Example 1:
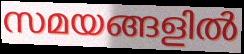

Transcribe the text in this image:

സമയങ്ങളിൽ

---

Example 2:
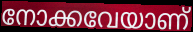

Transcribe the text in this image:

നോക്കവേയാണ്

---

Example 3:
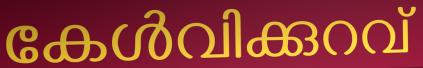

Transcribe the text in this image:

കേൾവിക്കുറവ്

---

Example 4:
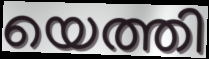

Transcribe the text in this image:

യെത്തി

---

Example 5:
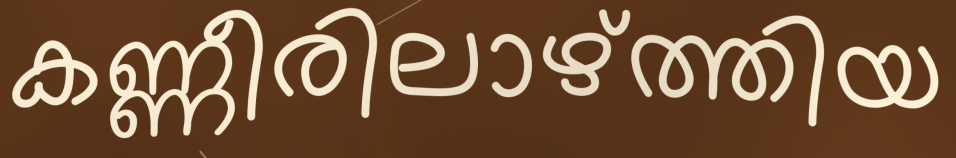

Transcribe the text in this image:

കണ്ണീരിലാഴ്ത്തിയ